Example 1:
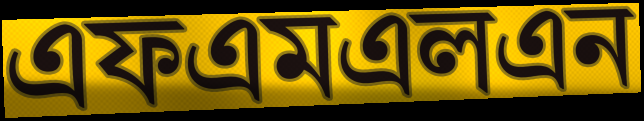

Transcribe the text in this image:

এফএমএলএন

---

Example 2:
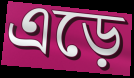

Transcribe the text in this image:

এড়ে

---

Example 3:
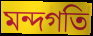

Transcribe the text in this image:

মন্দগতি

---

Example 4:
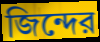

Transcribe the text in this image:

জিন্দের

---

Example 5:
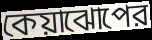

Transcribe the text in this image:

কেয়াঝোপের